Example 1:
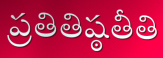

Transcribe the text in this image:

ప్రతితిష్ఠతీతి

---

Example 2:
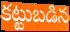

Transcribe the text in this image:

కట్టుబడిన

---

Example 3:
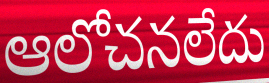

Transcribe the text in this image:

ఆలోచనలేదు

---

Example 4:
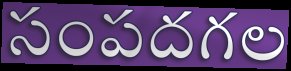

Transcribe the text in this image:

సంపదగల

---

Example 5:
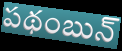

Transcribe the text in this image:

పథంబున్